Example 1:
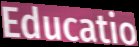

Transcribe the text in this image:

Educatio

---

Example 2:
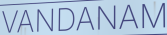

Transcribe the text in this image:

VANDANAM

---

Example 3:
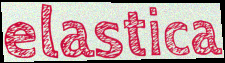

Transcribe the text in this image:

elastica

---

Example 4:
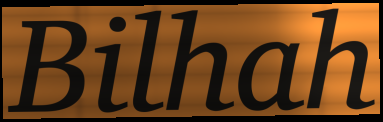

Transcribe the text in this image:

Bilhah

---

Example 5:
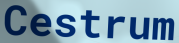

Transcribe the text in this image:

Cestrum